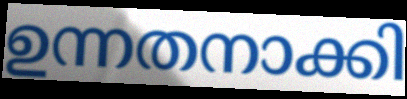
ഉന്നതനാക്കി